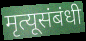
मृत्यूसंबंधी